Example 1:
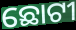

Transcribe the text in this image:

ଛୋଟୀ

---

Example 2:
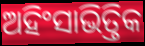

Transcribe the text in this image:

ଅହିଂସାଭିତ୍ତିକ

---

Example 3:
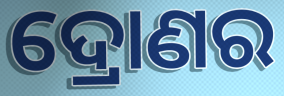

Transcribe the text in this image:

ଦ୍ରୋଣର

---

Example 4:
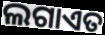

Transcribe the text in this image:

ଲଗାଏତ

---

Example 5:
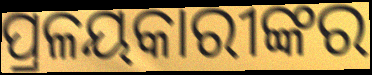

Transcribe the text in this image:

ପ୍ରଳୟକାରୀଙ୍କର